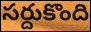
సర్దుకొంది